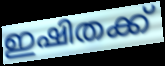
ഇഷിതക്ക്